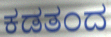
ಕಡತಂದ